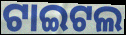
ଟାଇଟଲ